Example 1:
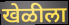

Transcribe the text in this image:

खेळीला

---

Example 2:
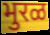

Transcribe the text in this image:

भुरळ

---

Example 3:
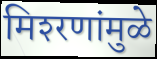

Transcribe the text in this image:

मिश्रणांमुळे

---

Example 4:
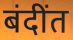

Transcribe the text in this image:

बंदींत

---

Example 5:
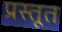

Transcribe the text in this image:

प्रस्तूत